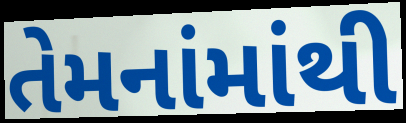
તેમનાંમાંથી